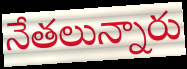
నేతలున్నారు